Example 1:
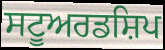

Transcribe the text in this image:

ਸਟੂਅਰਡਸ਼ਿਪ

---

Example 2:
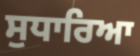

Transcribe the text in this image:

ਸੁਧਾਰਿਆ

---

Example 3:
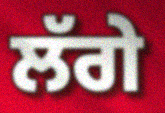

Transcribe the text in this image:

ਲੱਗੇ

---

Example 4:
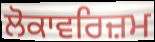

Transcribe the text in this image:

ਲੋਕਾਵਰਿਜ਼ਮ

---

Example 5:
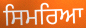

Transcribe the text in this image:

ਸਿਮਰਿਆ